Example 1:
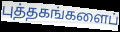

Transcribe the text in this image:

புத்தகங்களைப்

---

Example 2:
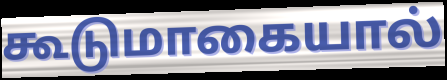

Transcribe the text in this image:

கூடுமாகையால்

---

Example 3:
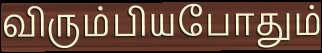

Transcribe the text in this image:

விரும்பியபோதும்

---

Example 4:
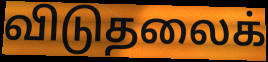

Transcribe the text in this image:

விடுதலைக்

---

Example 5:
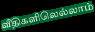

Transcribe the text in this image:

வீதிகளிலெல்லாம்